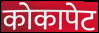
कोकापेट